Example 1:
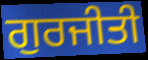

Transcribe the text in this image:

ਗੁਰਜੀਤੀ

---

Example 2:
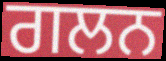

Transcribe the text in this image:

ਗਲਨ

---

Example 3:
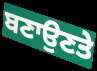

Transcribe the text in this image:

ਬਣਾਉਣਤੇ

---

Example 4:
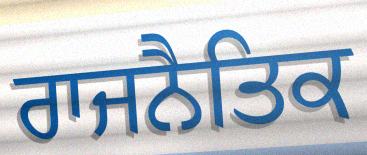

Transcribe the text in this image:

ਰਾਜਨੈਤਿਕ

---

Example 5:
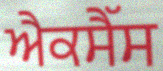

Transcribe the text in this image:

ਐਕਸੈੱਸ